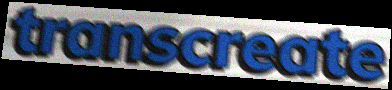
transcreate